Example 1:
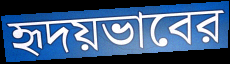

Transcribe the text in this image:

হৃদয়ভাবের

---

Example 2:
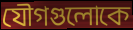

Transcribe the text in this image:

যৌগগুলোকে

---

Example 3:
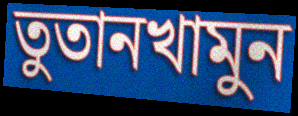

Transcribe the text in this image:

তুতানখামুন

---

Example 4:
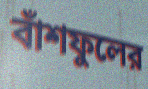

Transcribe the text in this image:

বাঁশফুলের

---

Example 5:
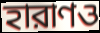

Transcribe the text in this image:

হারাণও